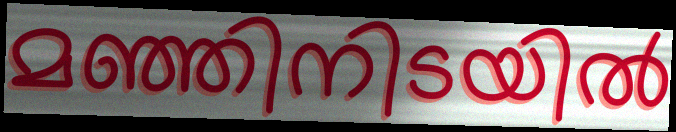
മഞ്ഞിനിടയിൽ